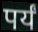
पर्यं